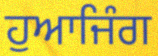
ਹੁਆਜਿੰਗ